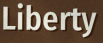
Liberty